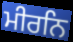
ਮੀਰਨਿ